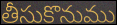
తీసుకొనుము